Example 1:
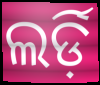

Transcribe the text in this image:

ଲର୍ଡ଼ି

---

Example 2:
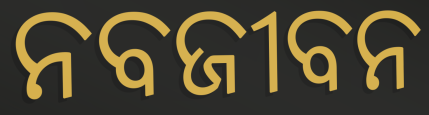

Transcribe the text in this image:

ନବଜୀବନ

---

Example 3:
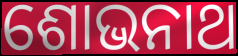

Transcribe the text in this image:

ଶୋଭନାଥ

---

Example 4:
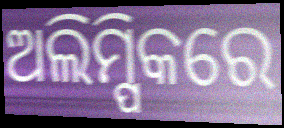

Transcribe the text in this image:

ଅଲିମ୍ପିକରେ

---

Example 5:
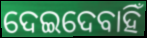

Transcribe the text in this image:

ଦେଇଦେବାହିଁ